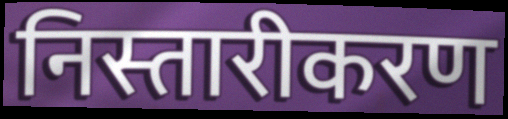
निस्तारीकरण